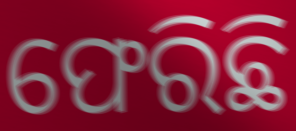
ଫେରିଛି